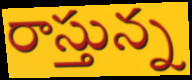
రాస్తున్న